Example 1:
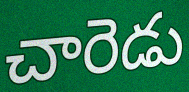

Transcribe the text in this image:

చారెడు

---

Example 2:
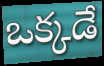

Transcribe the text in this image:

ఒక్కడే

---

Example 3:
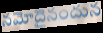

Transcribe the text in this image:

నమోదైనందున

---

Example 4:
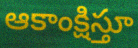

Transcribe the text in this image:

ఆకాంక్షిస్తూ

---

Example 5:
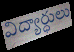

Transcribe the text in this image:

విద్యార్ధులు